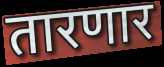
तारणार